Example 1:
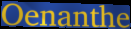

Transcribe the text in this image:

Oenanthe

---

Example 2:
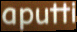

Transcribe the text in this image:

aputti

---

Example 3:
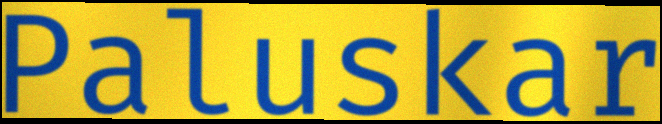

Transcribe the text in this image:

Paluskar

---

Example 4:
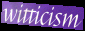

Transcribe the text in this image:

witticism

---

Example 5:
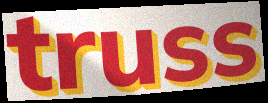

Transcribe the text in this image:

truss